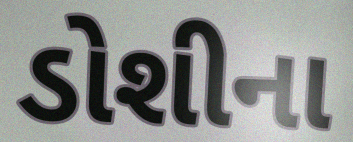
ડોશીના